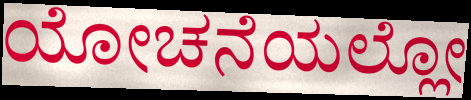
ಯೋಚನೆಯಲ್ಲೋ